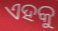
ଏହକୁ